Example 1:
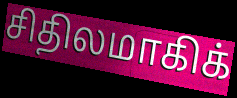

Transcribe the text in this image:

சிதிலமாகிக்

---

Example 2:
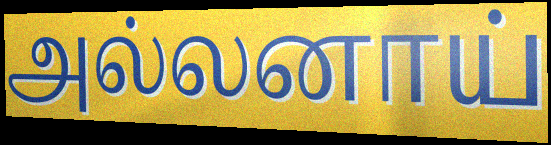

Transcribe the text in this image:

அல்லனாய்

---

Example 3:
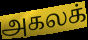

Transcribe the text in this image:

அகலக்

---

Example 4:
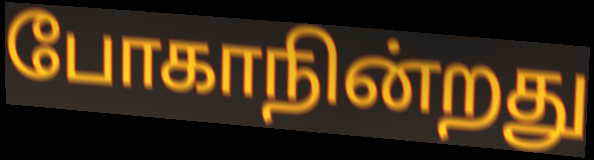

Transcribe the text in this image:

போகாநின்றது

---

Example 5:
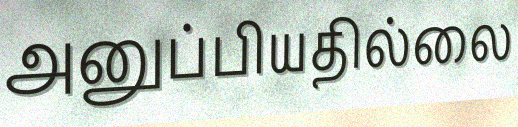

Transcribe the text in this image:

அனுப்பியதில்லை